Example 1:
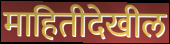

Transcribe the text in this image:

माहितीदेखील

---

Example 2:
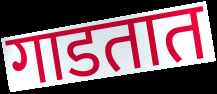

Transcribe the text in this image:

गाडतात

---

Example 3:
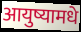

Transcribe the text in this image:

आयुष्यामधे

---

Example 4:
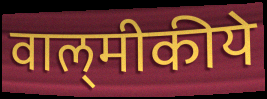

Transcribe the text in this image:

वाल्मीकीये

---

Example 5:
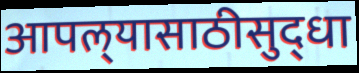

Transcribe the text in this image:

आपल्यासाठीसुद्धा